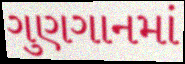
ગુણગાનમાં